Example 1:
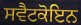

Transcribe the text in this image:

ਸਵੈਟਕੋਇਨ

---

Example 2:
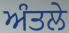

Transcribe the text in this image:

ਅੰਤਲੇ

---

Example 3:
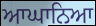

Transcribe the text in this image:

ਆਘਾਨਿਆ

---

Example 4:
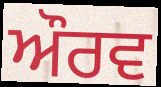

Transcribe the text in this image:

ਔਰਵ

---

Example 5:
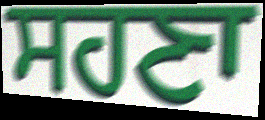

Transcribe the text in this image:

ਸਹਣਾ